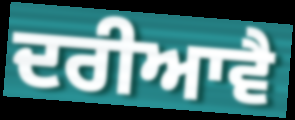
ਦਰੀਆਵੈ